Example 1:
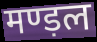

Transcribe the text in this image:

मण्ड़ल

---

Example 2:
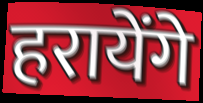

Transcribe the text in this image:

हरायेंगे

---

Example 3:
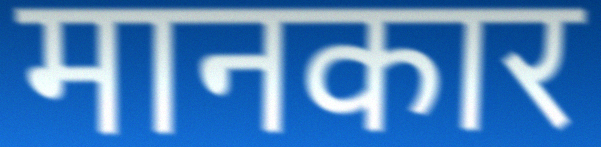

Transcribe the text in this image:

मानकार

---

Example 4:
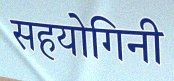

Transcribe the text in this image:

सहयोगिनी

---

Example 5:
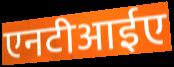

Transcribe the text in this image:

एनटीआईए